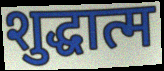
शुद्धात्म